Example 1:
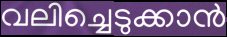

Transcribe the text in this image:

വലിച്ചെടുക്കാൻ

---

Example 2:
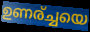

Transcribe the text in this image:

ഉണര്ച്ചയെ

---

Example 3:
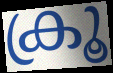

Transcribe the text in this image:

ക്രൂ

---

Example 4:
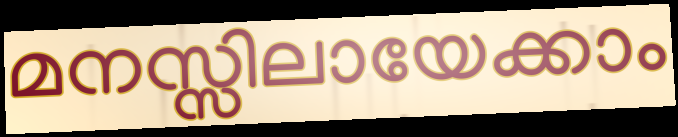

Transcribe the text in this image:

മനസ്സിലായേക്കാം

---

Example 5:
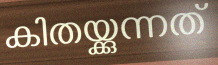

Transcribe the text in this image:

കിതയ്ക്കുന്നത്